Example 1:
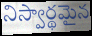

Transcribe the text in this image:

నిస్వార్థమైన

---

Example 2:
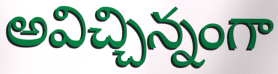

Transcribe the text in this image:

అవిచ్చిన్నంగా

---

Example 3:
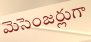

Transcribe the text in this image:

మెసెంజర్లుగా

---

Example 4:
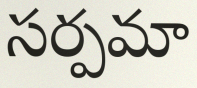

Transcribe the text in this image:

సర్పమా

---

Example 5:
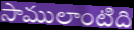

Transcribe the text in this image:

సాములాంటిది